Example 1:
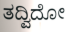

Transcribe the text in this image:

ತದ್ವಿದೋ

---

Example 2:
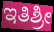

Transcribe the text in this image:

ಇತಿಶ್ರೀ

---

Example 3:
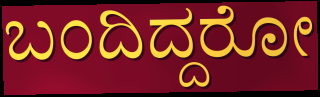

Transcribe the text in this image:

ಬಂದಿದ್ದರೋ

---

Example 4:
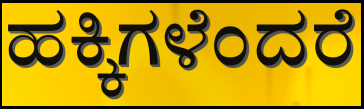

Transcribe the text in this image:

ಹಕ್ಕಿಗಳೆಂದರೆ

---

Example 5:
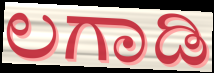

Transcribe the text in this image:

ಲಗಾಡಿ